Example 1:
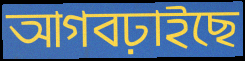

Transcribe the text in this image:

আগবঢ়াইছে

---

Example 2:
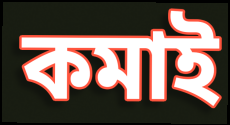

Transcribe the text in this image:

কমাই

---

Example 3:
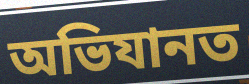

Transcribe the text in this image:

অভিযানত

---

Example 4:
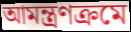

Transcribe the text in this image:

আমন্ত্ৰণক্ৰমে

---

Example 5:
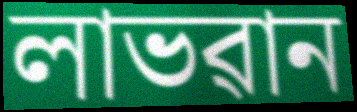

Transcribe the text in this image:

লাভৱান